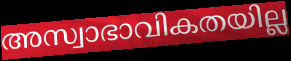
അസ്വാഭാവികതയില്ല